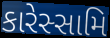
કારેસ્સામિ